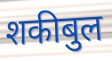
शकीबुल